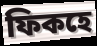
ফিকহে